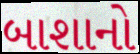
બાશાનો